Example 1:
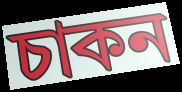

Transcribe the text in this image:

চাকন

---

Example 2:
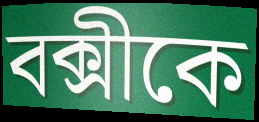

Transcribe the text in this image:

বক্সীকে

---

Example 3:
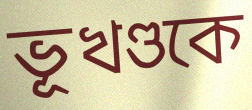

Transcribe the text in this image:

ভূখণ্ডকে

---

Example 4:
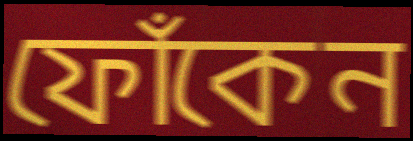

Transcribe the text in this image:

ফোঁকেন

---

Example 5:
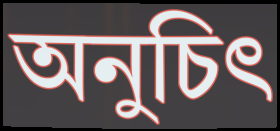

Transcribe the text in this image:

অনুচিৎ